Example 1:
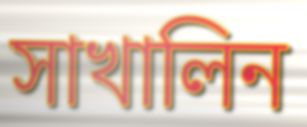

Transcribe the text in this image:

সাখালিন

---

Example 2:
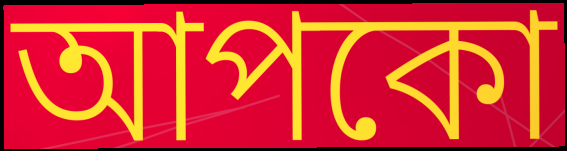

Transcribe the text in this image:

আপকো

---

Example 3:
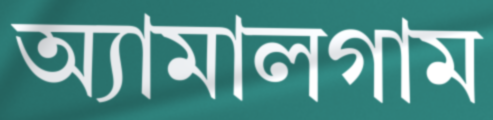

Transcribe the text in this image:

অ্যামালগাম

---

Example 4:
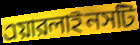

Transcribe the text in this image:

এয়ারলাইনসটি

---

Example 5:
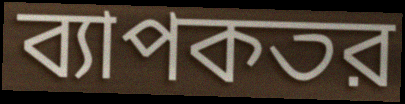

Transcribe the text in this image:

ব্যাপকতর